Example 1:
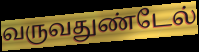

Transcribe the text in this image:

வருவதுண்டேல்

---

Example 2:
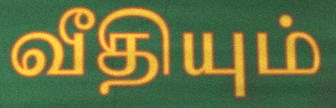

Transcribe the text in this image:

வீதியும்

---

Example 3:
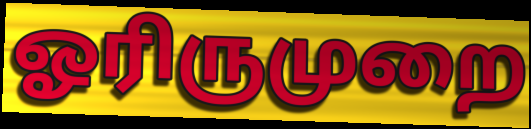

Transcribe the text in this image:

ஓரிருமுறை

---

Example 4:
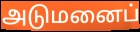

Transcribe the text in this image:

அடுமனைப்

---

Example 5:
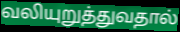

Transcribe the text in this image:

வலியுறுத்துவதால்